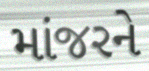
માંજરને